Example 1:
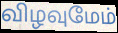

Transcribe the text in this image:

விழவுமேம்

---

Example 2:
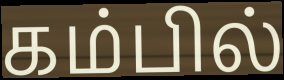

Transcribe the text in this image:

கம்பில்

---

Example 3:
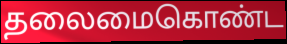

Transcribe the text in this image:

தலைமைகொண்ட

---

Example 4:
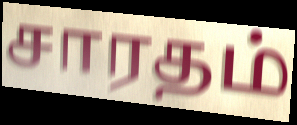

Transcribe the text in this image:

சாரதம்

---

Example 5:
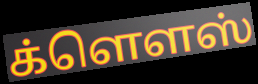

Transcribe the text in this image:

க்ளௌஸ்